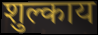
शुल्काय